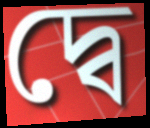
দ্বে